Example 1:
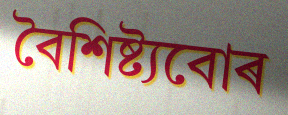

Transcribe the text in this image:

বৈশিষ্ট্যবোৰ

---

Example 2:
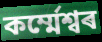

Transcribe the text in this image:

কৰ্ম্মেশ্বৰ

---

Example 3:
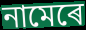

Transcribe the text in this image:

নামেৰে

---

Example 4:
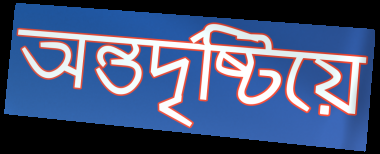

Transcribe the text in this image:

অন্তৰ্দৃষ্টিয়ে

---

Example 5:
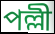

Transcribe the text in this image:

পল্লী